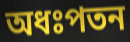
অধঃপতন